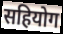
सहियोग